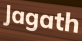
Jagath